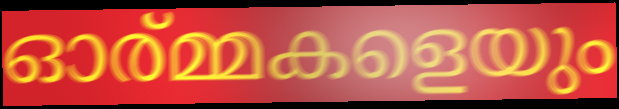
ഓര്മ്മകളെയും